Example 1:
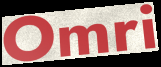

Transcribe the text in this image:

Omri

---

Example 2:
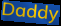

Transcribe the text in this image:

Daddy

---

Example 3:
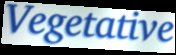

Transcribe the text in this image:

Vegetative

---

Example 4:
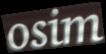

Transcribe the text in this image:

osim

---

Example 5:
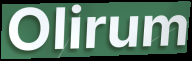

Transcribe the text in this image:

Olirum